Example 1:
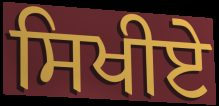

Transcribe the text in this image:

ਸਿਖੀਏ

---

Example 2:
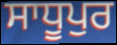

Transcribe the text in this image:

ਸਾਧੂਪੁਰ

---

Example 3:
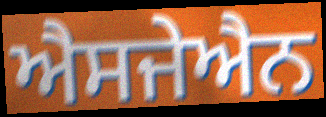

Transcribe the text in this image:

ਐਸਜੇਐਨ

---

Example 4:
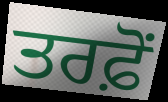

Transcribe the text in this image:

ਤਰਫ਼ੋਂ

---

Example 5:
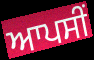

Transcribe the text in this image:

ਆਪਸੀਂ